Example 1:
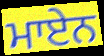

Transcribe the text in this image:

ਮਾਏਨ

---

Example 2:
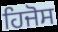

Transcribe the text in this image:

ਹਿਜੋਸ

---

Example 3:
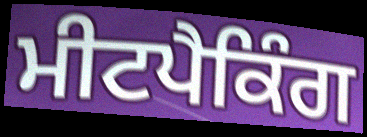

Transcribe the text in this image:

ਮੀਟਪੈਕਿੰਗ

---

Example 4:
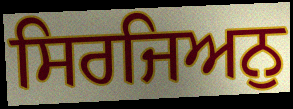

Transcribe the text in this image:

ਸਿਰਜਿਅਨੁ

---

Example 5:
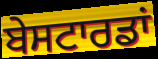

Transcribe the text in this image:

ਬੇਸਟਾਰਡਾਂ